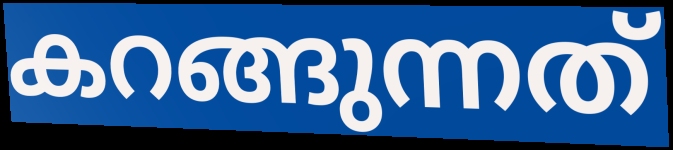
കറങ്ങുന്നത്